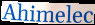
Ahimelec